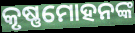
କୃଷ୍ଣମୋହନଙ୍କ